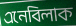
এনেবিলাক